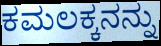
ಕಮಲಕ್ಕನನ್ನು